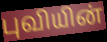
புவியின்